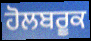
ਹੋਲਬਰੂਕ